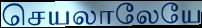
செயலாலேயே